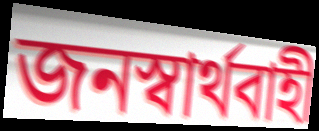
জনস্বার্থবাহী